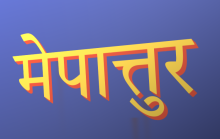
मेपात्तुर